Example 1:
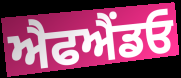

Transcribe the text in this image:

ਐਫਐਂਡਓ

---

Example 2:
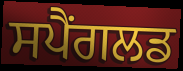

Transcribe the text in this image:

ਸਪੈਂਗਲਡ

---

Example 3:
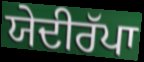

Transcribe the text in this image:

ਯੇਦੀਰੱਪਾ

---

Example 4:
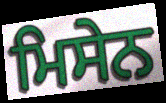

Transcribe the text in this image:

ਮਿਸੇਨ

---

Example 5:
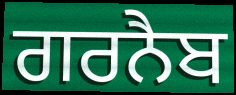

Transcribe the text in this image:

ਗਰਨੈਬ